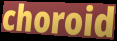
choroid